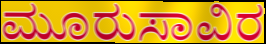
ಮೂರುಸಾವಿರ